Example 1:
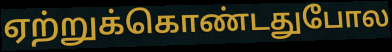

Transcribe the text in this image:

ஏற்றுக்கொண்டதுபோல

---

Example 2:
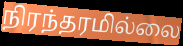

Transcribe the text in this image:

நிரந்தரமில்லை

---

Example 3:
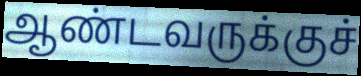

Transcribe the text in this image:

ஆண்டவருக்குச்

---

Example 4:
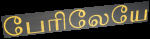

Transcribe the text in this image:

பேரிலேயே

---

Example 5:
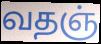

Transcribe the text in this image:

வதஞ்